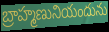
బ్రాహ్మణునియందును